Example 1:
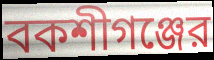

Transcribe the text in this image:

বকশীগঞ্জের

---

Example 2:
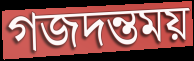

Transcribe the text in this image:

গজদন্তময়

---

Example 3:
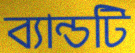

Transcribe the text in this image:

ব্যান্ডটি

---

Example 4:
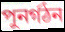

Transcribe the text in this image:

পুনর্গঠন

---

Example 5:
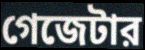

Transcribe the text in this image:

গেজেটার